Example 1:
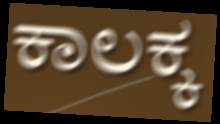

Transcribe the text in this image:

ಕಾಲಕ್ಕ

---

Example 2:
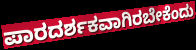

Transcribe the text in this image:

ಪಾರದರ್ಶಕವಾಗಿರಬೇಕೆಂದು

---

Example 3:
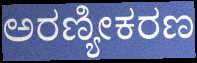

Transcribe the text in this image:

ಅರಣ್ಯೀಕರಣ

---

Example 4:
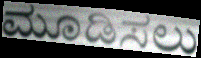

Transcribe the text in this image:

ಮೂಡಿಸಲು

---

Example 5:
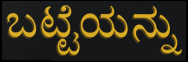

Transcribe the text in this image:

ಬಟ್ಟೆಯನ್ನು